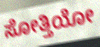
ಸೋತ್ತಿಯೋ